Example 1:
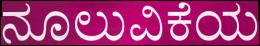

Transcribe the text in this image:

ನೂಲುವಿಕೆಯ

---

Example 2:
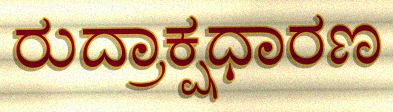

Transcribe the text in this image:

ರುದ್ರಾಕ್ಷಧಾರಣ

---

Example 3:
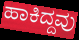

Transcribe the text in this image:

ಹಾಕಿದ್ದವು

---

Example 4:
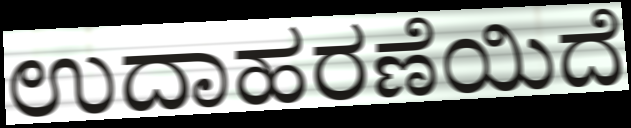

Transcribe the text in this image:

ಉದಾಹರಣೆಯಿದೆ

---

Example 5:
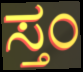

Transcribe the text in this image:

ಸ್ತಂ